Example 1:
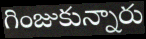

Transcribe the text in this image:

గింజుకున్నారు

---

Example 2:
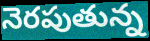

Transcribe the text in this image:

నెరపుతున్న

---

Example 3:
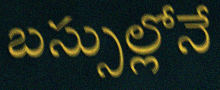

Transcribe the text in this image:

బస్సుల్లోనే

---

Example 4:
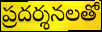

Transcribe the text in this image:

ప్రదర్శనలతో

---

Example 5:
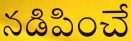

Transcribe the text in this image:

నడిపించే